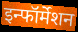
इन्फॉर्मेशन